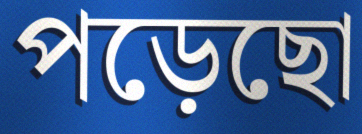
পড়েছো